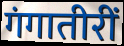
गंगातीरीं